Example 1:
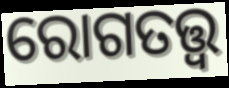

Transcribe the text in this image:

ରୋଗତତ୍ତ୍ୱ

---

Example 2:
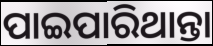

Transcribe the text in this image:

ପାଇପାରିଥାନ୍ତା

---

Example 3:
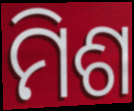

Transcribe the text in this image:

ମିଶ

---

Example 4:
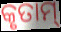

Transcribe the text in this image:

କୃତାମ୍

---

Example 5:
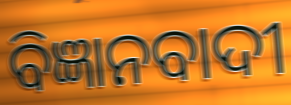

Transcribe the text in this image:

ବିଜ୍ଞାନବାଦୀ